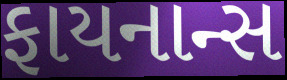
ફાયનાન્સ